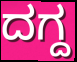
ದಗ್ದ